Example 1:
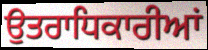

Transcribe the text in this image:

ਉਤਰਾਧਿਕਾਰੀਆਂ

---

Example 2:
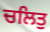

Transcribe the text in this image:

ਚਲਿਤੁ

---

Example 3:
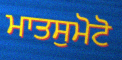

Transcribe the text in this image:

ਮਾਤਸੁਮੋਟੋ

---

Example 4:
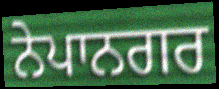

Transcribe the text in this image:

ਨੇਪਾਨਗਰ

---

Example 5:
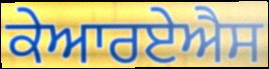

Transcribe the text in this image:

ਕੇਆਰਏਐਸ